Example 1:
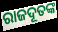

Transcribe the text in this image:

ରାଜଦୂତଙ୍କ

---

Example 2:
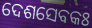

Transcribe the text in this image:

ଦେଶସେବକଃ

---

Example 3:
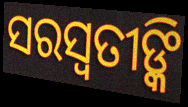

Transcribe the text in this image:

ସରସ୍ୱତୀଙ୍କି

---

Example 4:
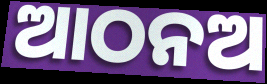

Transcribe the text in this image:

ଆଠନଅ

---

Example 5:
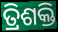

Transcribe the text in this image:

ତ୍ରିଶକ୍ତି